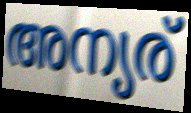
അന്യര്